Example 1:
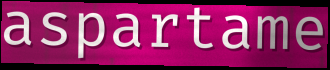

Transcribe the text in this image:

aspartame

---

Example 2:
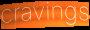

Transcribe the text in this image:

cravings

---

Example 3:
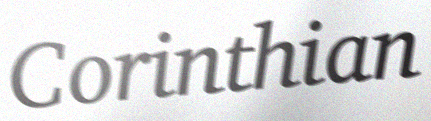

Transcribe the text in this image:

Corinthian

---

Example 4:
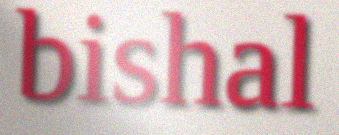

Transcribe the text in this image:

bishal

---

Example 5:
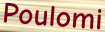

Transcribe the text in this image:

Poulomi